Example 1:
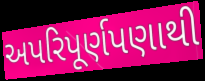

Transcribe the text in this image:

અપરિપૂર્ણપણાથી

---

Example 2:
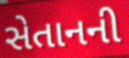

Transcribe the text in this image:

સેતાનની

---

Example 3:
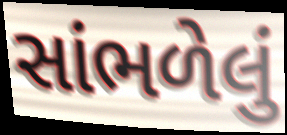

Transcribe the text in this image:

સાંભળેલું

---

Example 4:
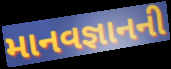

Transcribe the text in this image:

માનવજ્ઞાનની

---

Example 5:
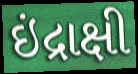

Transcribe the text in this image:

ઇંદ્રાક્ષી